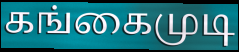
கங்கைமுடி